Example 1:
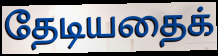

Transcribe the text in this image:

தேடியதைக்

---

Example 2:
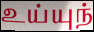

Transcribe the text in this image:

உய்யுந்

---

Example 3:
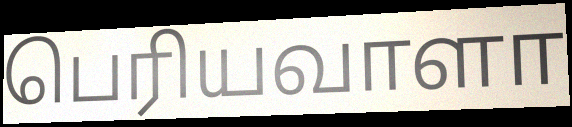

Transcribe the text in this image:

பெரியவாளா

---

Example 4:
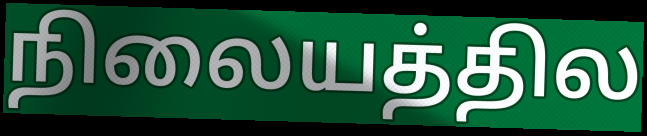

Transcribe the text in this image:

நிலையத்தில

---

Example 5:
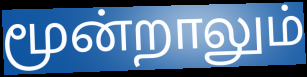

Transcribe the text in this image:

மூன்றாலும்